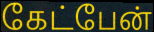
கேட்பேன்